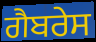
ਗੈਬਰੇਸ